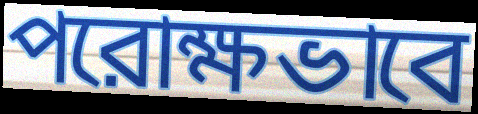
পরোক্ষভাবে